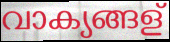
വാക്യങ്ങള്